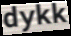
dykk